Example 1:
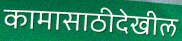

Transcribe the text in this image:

कामासाठीदेखील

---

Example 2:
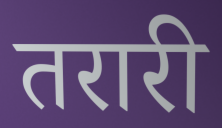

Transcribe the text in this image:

तरारी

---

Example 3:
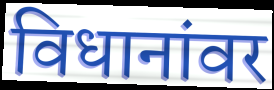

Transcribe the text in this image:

विधानांवर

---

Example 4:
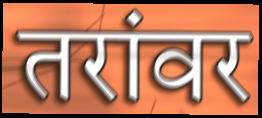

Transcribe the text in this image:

तरांवर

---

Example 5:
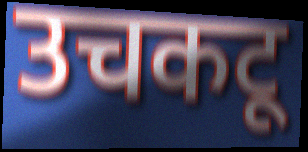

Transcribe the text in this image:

उचकटू